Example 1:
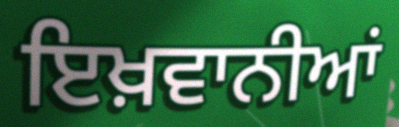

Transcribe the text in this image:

ਇਖ਼ਵਾਨੀਆਂ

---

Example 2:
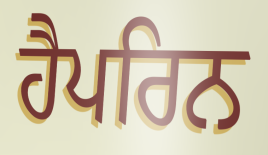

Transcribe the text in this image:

ਹੈਪਰਿਨ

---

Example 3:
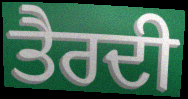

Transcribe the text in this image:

ਤੈਰਦੀ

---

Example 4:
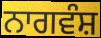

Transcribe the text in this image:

ਨਾਗਵੰਸ਼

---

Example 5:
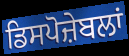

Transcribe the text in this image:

ਡਿਸਪੋਜ਼ੇਬਲਾਂ